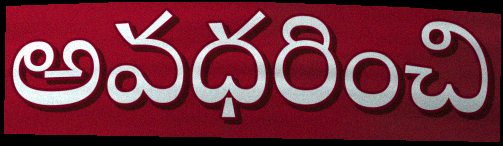
అవధరించి